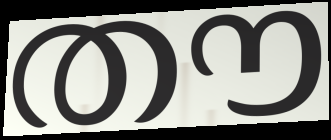
തൗ